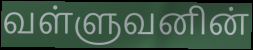
வள்ளுவனின்